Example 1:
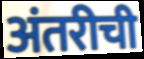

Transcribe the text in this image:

अंतरीची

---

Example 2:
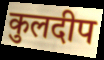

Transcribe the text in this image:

कुलदीप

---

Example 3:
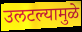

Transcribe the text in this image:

उलटल्यामुळे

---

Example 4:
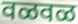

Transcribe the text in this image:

वळवळ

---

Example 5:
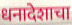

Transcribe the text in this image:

धनादेशाचा